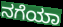
ನಗೆಯಾ